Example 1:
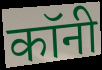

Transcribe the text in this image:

कॉनी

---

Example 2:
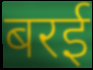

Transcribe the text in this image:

बरई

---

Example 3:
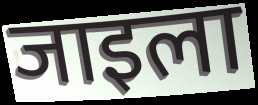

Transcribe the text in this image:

जाइला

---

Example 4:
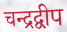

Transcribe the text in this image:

चन्द्रद्वीप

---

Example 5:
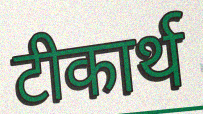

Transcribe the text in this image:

टीकार्थ